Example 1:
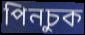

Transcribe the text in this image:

পিনচুক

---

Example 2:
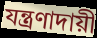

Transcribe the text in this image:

যন্ত্রণাদায়ী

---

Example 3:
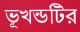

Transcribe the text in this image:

ভূখন্ডটির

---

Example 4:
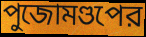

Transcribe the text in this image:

পুজোমণ্ডপের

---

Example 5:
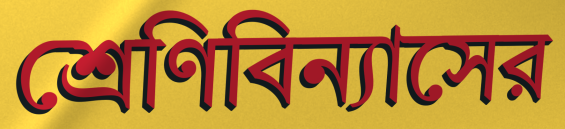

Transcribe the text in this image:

শ্রেণিবিন্যাসের